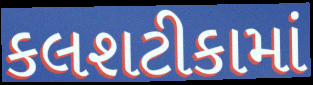
કલશટીકામાં